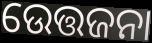
ଉେତ୍ତଜନା